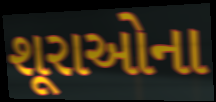
શૂરાઓના